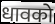
धावको